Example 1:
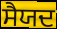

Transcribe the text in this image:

ਸੈਯਦ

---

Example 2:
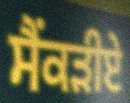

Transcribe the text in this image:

ਸੈਂਕੜੀਏ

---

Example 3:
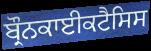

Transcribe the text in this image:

ਬ੍ਰੌਨਕਾਈਕਟੈਸਿਸ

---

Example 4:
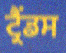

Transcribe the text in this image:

ਟ੍ਰੈਂਡਸ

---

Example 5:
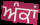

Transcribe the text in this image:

ਅੰਕਾਂ